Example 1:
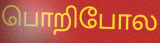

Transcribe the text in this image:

பொறிபோல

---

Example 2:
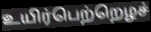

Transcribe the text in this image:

உயிர்பெற்றெழச்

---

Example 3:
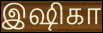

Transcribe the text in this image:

இஷிகா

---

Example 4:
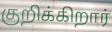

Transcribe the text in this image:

குறிக்கிறார்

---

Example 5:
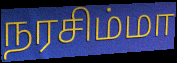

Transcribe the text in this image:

நரசிம்மா